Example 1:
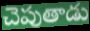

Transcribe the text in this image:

చెపుతాడు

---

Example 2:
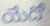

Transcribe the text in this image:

యేదో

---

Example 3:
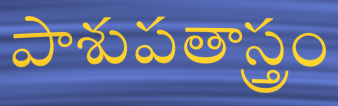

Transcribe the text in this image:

పాశుపతాస్త్రం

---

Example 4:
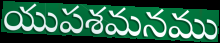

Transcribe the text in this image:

యుపశమనము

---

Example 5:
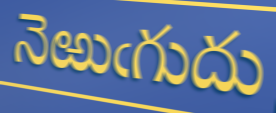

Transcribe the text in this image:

నెఱుఁగుదు